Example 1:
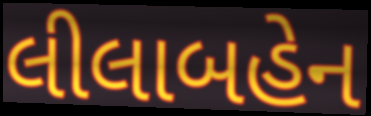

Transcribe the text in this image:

લીલાબહેન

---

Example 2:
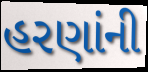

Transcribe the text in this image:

હરણાંની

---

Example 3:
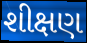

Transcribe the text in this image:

શીક્ષણ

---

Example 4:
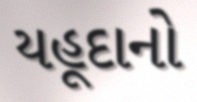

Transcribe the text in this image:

યહૂદાનો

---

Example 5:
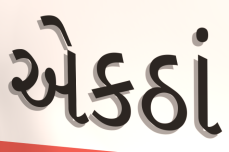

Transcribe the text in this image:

એકઠાં